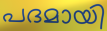
പദമായി